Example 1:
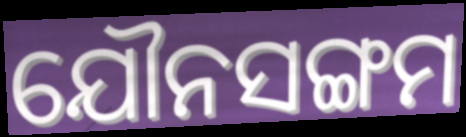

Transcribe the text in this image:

ଯୌନସଙ୍ଗମ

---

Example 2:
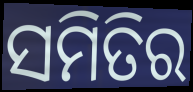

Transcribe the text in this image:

ସମିତିର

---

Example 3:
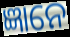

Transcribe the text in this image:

ଜ୍ଞାନେ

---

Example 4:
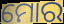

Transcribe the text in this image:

ମୋର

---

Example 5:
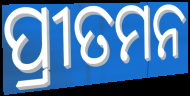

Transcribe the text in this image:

ପ୍ରୀତମନ